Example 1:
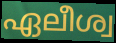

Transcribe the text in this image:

ഏലീശ്വ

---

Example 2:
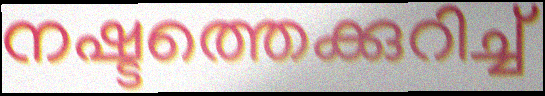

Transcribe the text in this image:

നഷ്ടത്തെക്കുറിച്ച്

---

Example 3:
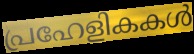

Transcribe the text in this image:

പ്രഹേളികകൾ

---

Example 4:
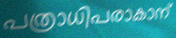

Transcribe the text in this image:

പത്രാധിപരാകാന്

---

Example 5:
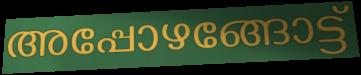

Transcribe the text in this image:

അപ്പോഴങ്ങോട്ട്